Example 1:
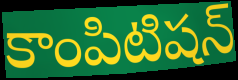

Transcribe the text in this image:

కాంపిటిషన్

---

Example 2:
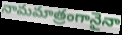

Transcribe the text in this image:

నామమాత్రంగానైనా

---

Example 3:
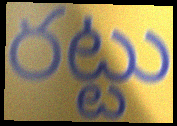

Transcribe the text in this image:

రట్టు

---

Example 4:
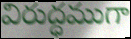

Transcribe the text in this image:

విరుద్ధముగా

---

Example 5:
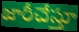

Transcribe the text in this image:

జారీచేస్తూ